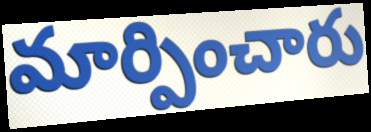
మార్పించారు